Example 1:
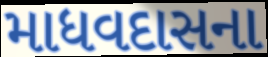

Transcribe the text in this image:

માધવદાસના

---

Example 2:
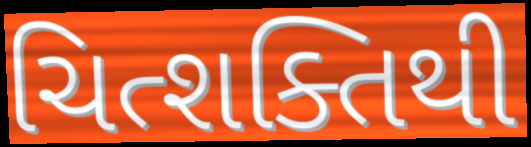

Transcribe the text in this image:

ચિત્શક્તિથી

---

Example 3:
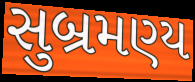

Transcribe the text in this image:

સુબ્રમણ્ય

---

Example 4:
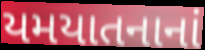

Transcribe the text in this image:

યમયાતનાનાં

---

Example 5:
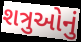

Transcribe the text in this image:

શત્રુઓનું